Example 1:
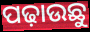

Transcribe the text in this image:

ପଢ଼ାଉଛୁ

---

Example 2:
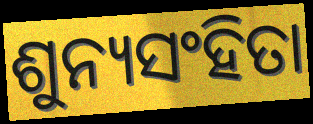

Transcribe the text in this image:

ଶୁନ୍ୟସଂହିତା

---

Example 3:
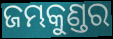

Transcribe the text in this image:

ଜମ୍ଭକୁଣ୍ଡର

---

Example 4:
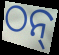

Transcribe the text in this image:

ଠନ୍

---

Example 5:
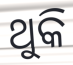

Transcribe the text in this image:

ଥୁକି